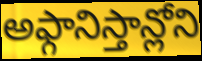
అఫ్గానిస్తాన్లోని